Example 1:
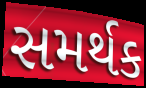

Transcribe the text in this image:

સમર્થક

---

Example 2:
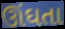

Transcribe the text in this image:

ઊંઘતા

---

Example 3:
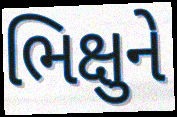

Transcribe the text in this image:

ભિક્ષુને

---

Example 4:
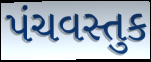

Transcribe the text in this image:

પંચવસ્તુક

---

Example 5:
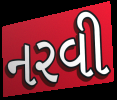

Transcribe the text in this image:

નરવી